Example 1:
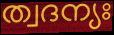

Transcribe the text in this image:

ത്വദന്യഃ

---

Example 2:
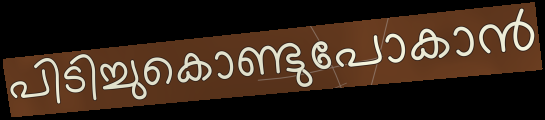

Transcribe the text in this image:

പിടിച്ചുകൊണ്ടുപോകാൻ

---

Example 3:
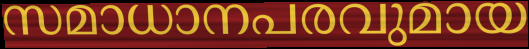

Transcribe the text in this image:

സമാധാനപരവുമായ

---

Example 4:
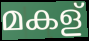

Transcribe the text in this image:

മകള്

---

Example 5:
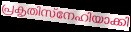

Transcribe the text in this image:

പ്രകൃതിസ്‌നേഹിയാക്കി